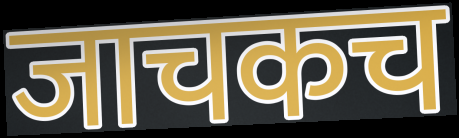
जाचकच